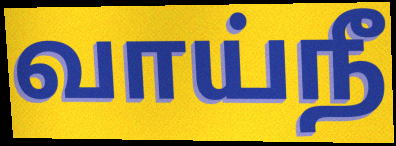
வாய்நீ